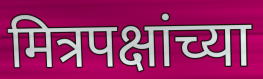
मित्रपक्षांच्या